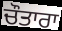
ਚੌਤਾਰਾ